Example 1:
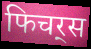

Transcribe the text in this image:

फिचर्स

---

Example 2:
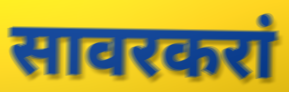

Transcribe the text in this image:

सावरकरां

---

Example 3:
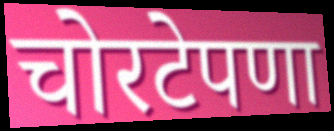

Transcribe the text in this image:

चोरटेपणा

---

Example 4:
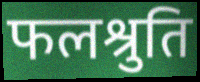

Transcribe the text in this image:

फलश्रुति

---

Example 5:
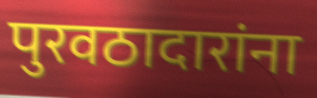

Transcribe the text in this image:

पुरवठादारांना